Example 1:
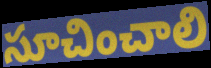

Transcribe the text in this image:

సూచించాలి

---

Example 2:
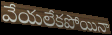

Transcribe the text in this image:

వేయలేకపోయినా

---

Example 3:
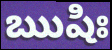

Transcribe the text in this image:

ఋషిః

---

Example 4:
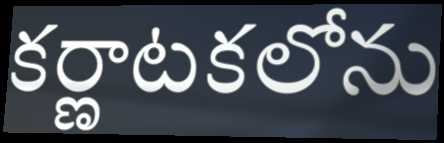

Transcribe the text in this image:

కర్ణాటకలోను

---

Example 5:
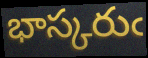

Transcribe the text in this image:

భాస్కరుఁ